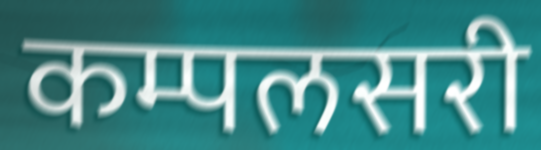
कम्पलसरी